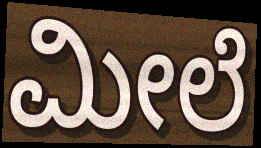
ಮೀಲೆ